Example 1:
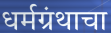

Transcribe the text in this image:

धर्मग्रंथाचा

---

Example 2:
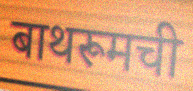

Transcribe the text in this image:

बाथरूमची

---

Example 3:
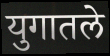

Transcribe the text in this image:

युगातले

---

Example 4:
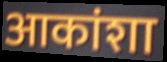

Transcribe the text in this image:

आकांशा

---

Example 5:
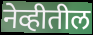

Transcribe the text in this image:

नेव्हीतील